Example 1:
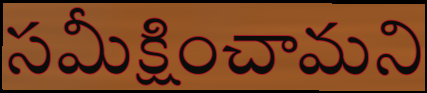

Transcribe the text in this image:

సమీక్షించామని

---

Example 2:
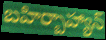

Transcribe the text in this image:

బహిర్బాహ్యాన్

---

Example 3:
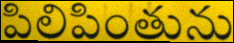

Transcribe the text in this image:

పిలిపింతును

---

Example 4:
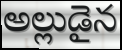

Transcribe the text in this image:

అల్లుడైన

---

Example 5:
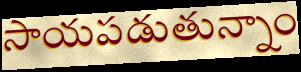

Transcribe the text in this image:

సాయపడుతున్నాం